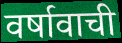
वर्षावाची